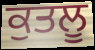
ਕੁਤਲੂ